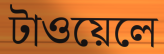
টাওয়েলে